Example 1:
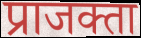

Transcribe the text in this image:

प्राजक्ता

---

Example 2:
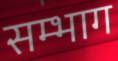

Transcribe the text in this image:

सम्भाग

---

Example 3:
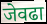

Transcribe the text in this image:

जेवढा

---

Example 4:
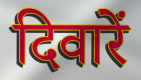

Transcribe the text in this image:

दिवारें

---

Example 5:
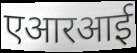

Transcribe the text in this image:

एआरआई